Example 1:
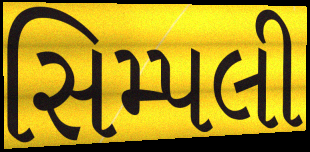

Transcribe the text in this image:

સિમ્પલી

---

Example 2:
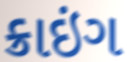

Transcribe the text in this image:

ક્રાઇંગ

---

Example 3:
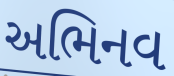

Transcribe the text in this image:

અભિનવ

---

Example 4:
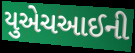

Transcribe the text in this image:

યુએચઆઈની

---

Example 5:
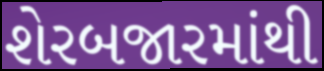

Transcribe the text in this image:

શેરબજારમાંથી